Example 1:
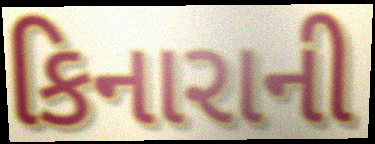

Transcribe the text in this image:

કિનારાની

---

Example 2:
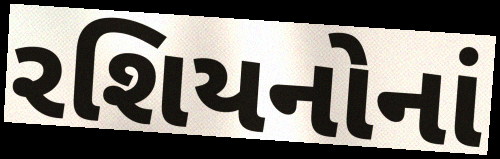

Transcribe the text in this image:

રશિયનોનાં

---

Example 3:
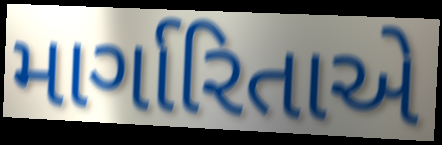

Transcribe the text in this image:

માર્ગારિતાએ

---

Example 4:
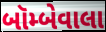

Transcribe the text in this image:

બૉમ્બેવાલા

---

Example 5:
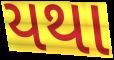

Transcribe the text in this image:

યથા